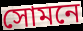
সোমনে